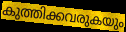
കുത്തിക്കവരുകയും